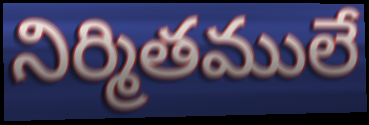
నిర్మితములే